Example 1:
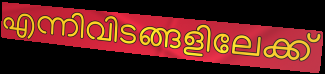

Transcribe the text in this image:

എന്നിവിടങ്ങളിലേക്ക്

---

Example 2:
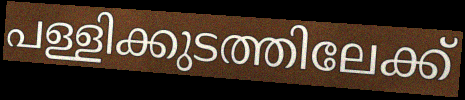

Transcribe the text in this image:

പള്ളിക്കുടത്തിലേക്ക്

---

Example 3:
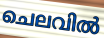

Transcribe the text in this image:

ചെലവിൽ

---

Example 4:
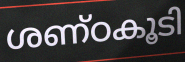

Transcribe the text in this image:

ശണ്ഠകൂടി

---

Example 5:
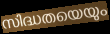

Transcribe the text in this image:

സിദ്ധതയെയും